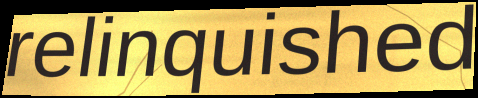
relinquished